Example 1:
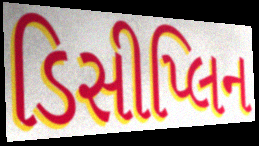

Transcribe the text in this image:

ડિસીપ્લિન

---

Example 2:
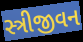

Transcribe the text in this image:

સ્ત્રીજીવન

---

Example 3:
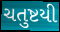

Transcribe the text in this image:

ચતુષ્ટયી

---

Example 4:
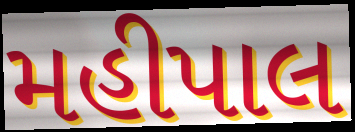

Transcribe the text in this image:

મહીપાલ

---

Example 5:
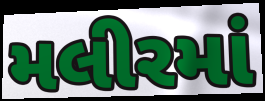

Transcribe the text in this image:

મલીરમાં